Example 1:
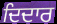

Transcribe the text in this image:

ਦਿਦਾਰ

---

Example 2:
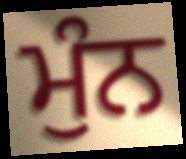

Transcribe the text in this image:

ਮੁੰਨ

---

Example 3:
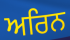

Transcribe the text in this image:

ਅਰਿਨ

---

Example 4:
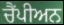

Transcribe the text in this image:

ਚੈਂਪੀਅਨ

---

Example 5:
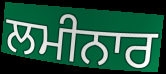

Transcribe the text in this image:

ਲਮੀਨਾਰ